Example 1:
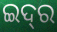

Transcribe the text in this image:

ଇଦ୍‍ର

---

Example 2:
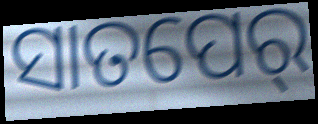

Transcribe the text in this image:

ସାତପେର୍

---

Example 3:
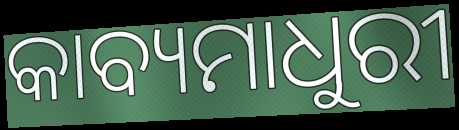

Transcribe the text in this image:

କାବ୍ୟମାଧୁରୀ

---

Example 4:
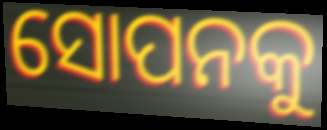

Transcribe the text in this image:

ସୋପନକୁ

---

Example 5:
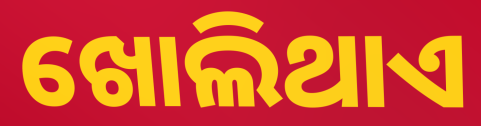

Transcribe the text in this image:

ଖୋଲିଥାଏ